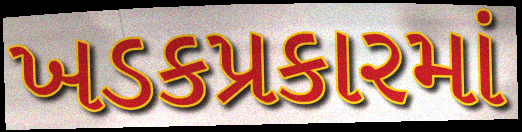
ખડકપ્રકારમાં